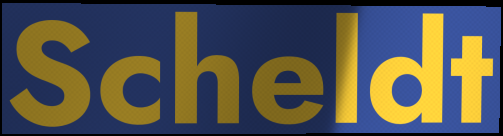
Scheldt